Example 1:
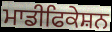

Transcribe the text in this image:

ਮਾਡੀਫਿਕੇਸ਼ਨ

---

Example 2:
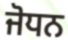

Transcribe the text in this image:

ਜੋਧਨ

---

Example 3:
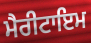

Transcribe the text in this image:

ਮੈਰੀਟਾਇਮ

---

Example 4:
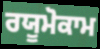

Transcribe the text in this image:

ਰਯੂਮੋਕਾਮ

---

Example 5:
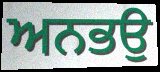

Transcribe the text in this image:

ਅਨਭਉ